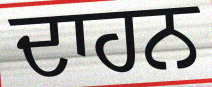
ਦਾਹਨ